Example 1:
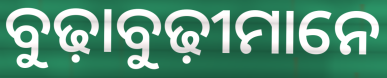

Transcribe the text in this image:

ବୁଢ଼ାବୁଢ଼ୀମାନେ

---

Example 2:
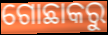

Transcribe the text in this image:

ଗୋଛାକରୁ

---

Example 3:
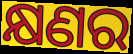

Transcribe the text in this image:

କ୍ଷଣର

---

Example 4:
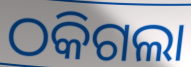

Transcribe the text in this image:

ଠକିଗଲା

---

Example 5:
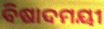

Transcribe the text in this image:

ବିଷାଦମୟୀ